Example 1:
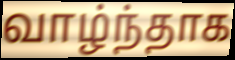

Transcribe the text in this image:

வாழ்ந்தாக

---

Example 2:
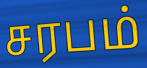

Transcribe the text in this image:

சரபம்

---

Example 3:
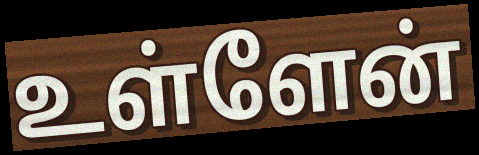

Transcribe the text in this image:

உள்ளேன்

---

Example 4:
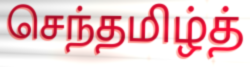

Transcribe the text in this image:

செந்தமிழ்த்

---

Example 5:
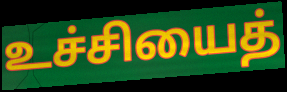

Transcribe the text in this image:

உச்சியைத்